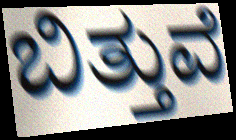
ಬಿತ್ತುವೆ